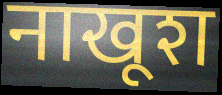
नाखूश